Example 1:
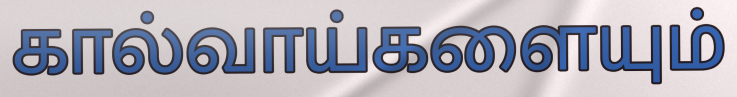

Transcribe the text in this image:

கால்வாய்களையும்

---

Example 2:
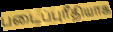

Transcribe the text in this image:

படைப்புரீதியாக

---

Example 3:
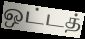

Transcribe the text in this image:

ஒட்டத்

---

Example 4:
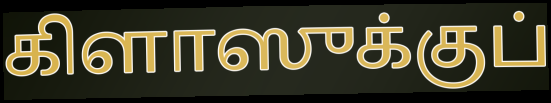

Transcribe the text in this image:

கிளாஸுக்குப்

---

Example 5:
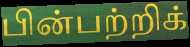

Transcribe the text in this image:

பின்பற்றிக்